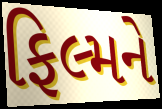
ફિલ્મને